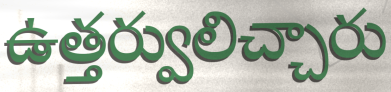
ఉత్తర్వులిచ్చారు